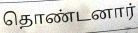
தொண்டனார்